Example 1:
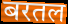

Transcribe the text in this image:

बरतल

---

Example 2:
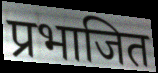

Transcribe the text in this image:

प्रभाजित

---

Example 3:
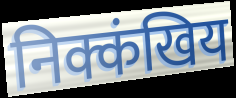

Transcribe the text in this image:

निक्कंखिय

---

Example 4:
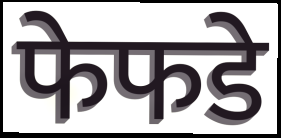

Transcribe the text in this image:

फेफडे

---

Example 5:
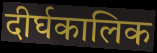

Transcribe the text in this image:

दीर्घकालिक